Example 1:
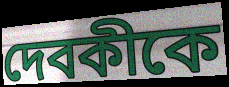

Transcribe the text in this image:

দেবকীকে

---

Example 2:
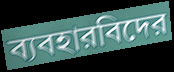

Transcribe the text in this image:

ব্যবহারবিদের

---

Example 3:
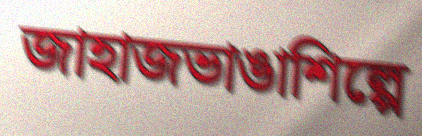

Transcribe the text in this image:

জাহাজভাঙাশিল্পে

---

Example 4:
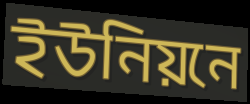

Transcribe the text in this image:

ইউনিয়নে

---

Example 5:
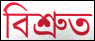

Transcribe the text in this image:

বিশ্রুত